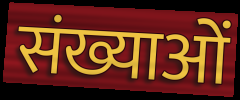
संख्याओं